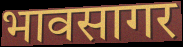
भावसागर